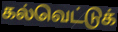
கல்வெட்டுக்